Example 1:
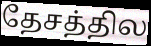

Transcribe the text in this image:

தேசத்தில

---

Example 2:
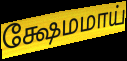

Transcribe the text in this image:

க்ஷேமமாய்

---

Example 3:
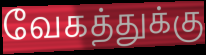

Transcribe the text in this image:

வேகத்துக்கு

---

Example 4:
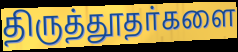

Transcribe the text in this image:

திருத்தூதர்களை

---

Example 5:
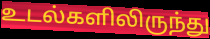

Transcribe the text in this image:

உடல்களிலிருந்து